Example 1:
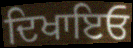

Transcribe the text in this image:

ਦਿਖਾਇਓ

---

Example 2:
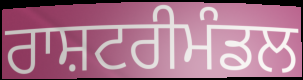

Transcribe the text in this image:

ਰਾਸ਼ਟਰੀਮੰਡਲ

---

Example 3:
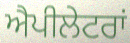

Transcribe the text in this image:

ਐਪੀਲੇਟਰਾਂ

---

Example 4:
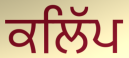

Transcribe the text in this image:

ਕਲਿੱਪ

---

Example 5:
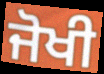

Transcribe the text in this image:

ਜੋਖੀ